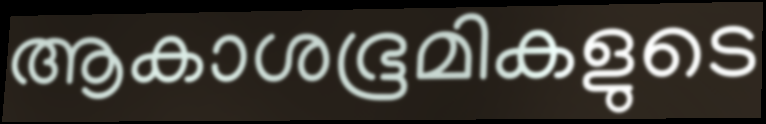
ആകാശഭൂമികളുടെ